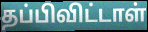
தப்பிவிட்டாள்